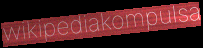
wikipediakompulsa